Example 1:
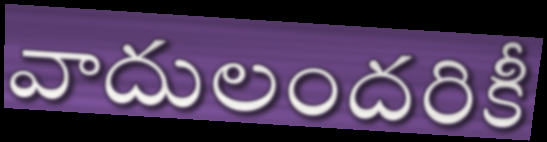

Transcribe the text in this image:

వాదులందరికీ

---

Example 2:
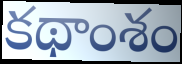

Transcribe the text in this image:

కథాంశం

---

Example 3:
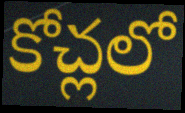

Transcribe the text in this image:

కోచ్లలో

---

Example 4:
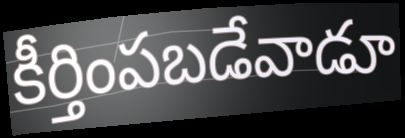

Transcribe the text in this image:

కీర్తింపబడేవాడూ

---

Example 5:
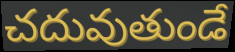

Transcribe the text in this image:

చదువుతుండే